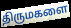
திருமகளை